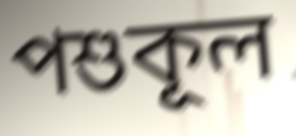
পশুকূল